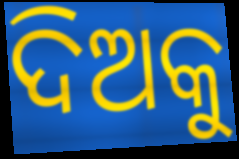
ଦିଅକୁ